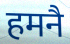
हमनै